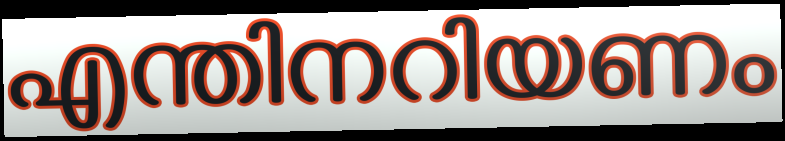
എന്തിനറിയണം